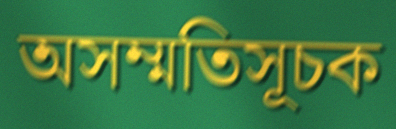
অসম্মতিসূচক